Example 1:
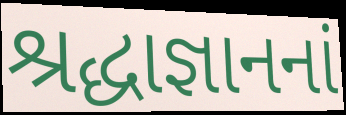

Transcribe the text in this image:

શ્રદ્ધાજ્ઞાનનાં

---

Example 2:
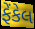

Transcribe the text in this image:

ફેંકેલ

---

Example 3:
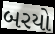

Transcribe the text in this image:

બરયો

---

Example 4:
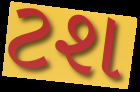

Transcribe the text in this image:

ટશ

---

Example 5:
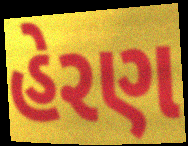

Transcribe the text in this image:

હેરણ